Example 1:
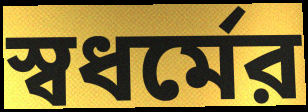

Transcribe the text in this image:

স্বধর্মের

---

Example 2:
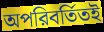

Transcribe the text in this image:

অপরিবর্তিতই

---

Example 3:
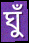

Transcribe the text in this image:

ঘুঁ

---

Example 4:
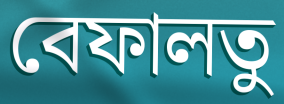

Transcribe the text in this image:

বেফালতু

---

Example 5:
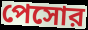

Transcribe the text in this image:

পেসোর